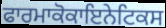
ਫਾਰਮਾਕੋਕਾਇਨੇਟਿਕਸ